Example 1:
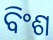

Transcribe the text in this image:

ବିଂଶ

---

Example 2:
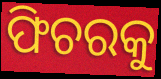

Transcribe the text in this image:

ଫିଚରକୁ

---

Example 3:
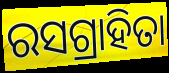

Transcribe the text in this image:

ରସଗ୍ରାହିତା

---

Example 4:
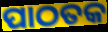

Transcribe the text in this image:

ପାଠତକ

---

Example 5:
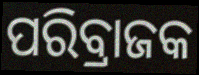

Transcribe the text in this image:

ପରିବ୍ରାଜକ